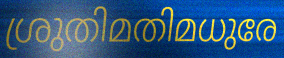
ശ്രുതിമതിമധുരേ